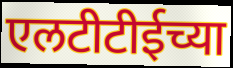
एलटीटीईच्या